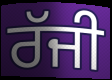
ਰੱਜੀ